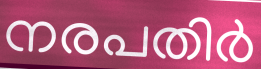
നരപതിർ